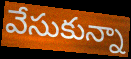
వేసుకున్నా